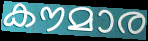
കൗമാര